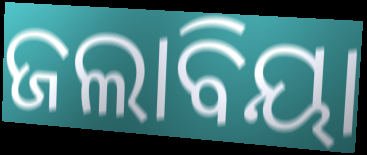
ଜଲାବିୟା